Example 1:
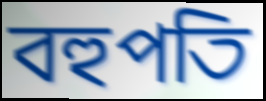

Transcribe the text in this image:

বহুপতি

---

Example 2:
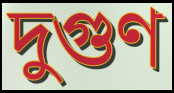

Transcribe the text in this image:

দুগুণ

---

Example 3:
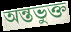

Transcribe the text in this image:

অন্তভুক্ত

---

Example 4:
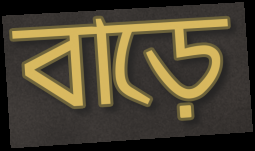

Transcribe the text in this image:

বাড়ে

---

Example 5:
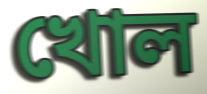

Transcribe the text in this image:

খোল